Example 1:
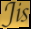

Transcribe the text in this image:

Jis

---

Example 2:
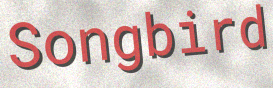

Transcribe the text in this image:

Songbird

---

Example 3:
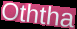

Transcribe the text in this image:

Oththa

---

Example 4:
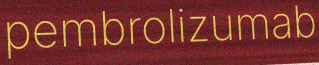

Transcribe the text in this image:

pembrolizumab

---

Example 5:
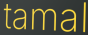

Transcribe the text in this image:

tamal